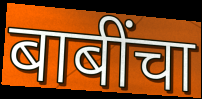
बाबींचा